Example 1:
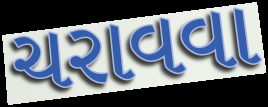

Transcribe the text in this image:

ચરાવવા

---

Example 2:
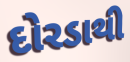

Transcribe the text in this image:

દોરડાથી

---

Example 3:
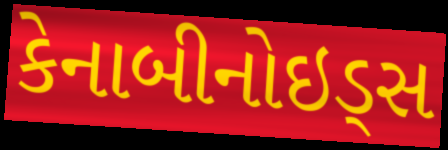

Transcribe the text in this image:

કેનાબીનોઇડ્સ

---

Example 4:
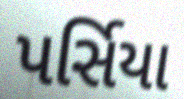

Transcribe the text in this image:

પર્સિયા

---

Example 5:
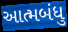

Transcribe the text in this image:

આત્મબંધુ